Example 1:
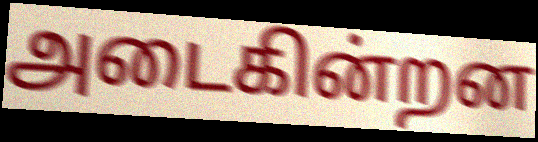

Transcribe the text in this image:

அடைகின்றன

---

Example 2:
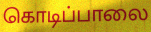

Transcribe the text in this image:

கொடிப்பாலை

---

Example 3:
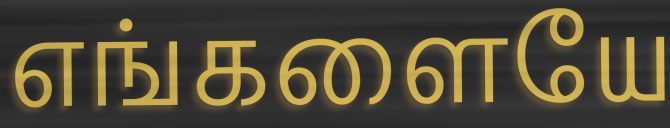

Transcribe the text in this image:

எங்களையே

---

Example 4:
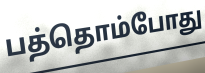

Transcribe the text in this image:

பத்தொம்போது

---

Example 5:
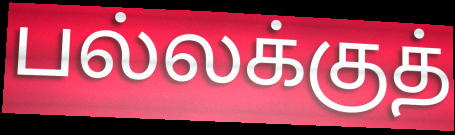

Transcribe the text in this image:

பல்லக்குத்